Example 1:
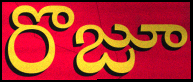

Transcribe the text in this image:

రొజూ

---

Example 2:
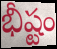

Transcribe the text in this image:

భీష్టం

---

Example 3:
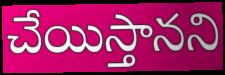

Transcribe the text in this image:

చేయిస్తానని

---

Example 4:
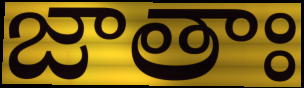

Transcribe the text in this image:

జాతాః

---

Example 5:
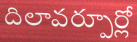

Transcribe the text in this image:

దిలావర్పూర్లో